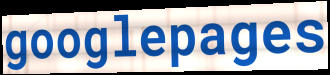
googlepages